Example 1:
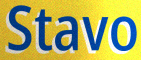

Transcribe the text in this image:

Stavo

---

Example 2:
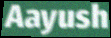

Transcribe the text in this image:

Aayush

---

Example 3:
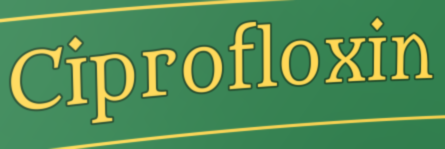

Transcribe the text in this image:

Ciprofloxin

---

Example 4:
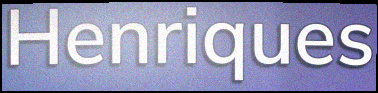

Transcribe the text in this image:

Henriques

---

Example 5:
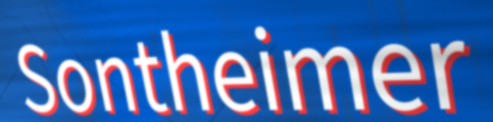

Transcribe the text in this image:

Sontheimer